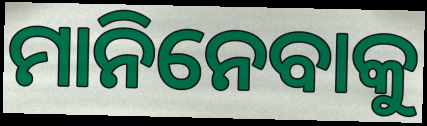
ମାନିନେବାକୁ